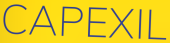
CAPEXIL